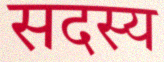
सदस्‍य